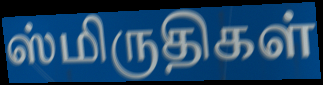
ஸ்மிருதிகள்